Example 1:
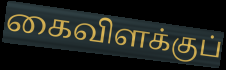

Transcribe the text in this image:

கைவிளக்குப்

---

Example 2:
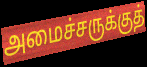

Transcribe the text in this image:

அமைச்சருக்குத்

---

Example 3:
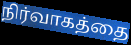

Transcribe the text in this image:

நிர்வாகத்தை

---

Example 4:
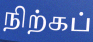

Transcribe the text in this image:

நிற்கப்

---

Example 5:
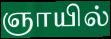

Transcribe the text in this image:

ஞாயில்